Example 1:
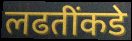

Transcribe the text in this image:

लढतींकडे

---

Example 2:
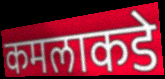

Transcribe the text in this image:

कमलाकडे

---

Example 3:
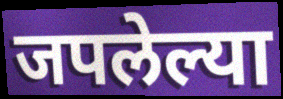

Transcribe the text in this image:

जपलेल्या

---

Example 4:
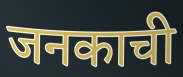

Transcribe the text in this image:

जनकाची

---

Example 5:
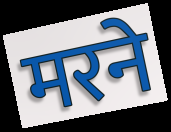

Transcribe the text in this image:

मरने